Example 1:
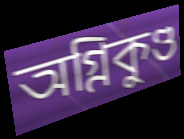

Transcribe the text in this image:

অগ্নিকুণ্ড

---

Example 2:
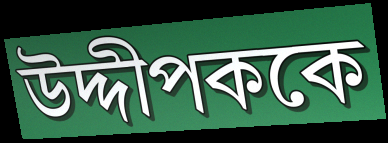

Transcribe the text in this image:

উদ্দীপককে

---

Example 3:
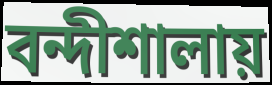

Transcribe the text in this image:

বন্দীশালায়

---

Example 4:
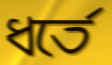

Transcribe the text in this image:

ধর্তে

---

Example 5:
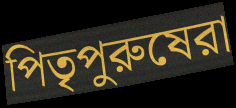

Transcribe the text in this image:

পিতৃপুরুষেরা